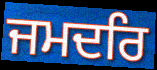
ਜਮਦਰਿ